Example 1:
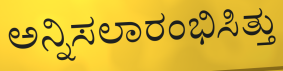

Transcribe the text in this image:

ಅನ್ನಿಸಲಾರಂಭಿಸಿತ್ತು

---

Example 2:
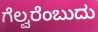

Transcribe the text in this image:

ಗೆಲ್ವರೆಂಬುದು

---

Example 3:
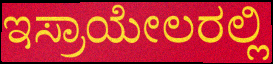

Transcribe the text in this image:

ಇಸ್ರಾಯೇಲರಲ್ಲಿ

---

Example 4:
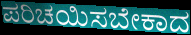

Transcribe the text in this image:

ಪರಿಚಯಿಸಬೇಕಾದ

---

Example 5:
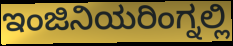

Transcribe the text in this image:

ಇಂಜಿನಿಯರಿಂಗ್ನಲ್ಲಿ